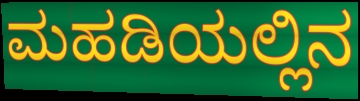
ಮಹಡಿಯಲ್ಲಿನ